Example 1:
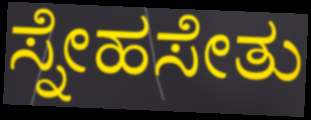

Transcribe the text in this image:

ಸ್ನೇಹಸೇತು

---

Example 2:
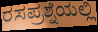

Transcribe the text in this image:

ರಸಪ್ರಶ್ನೆಯಲ್ಲಿ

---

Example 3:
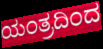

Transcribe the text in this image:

ಯಂತ್ರದಿಂದ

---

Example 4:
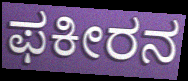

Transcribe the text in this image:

ಫಕೀರನ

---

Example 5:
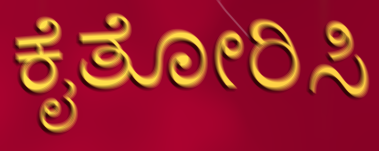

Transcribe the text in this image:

ಕೈತೋರಿಸಿ